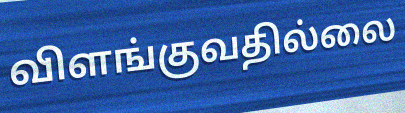
விளங்குவதில்லை